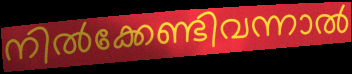
നിൽക്കേണ്ടിവന്നാൽ